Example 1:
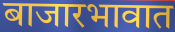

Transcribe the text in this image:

बाजारभावात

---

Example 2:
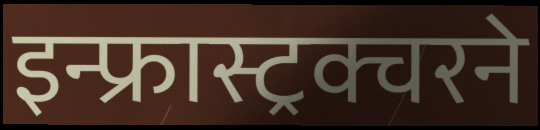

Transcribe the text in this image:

इन्फ्रास्ट्रक्चरने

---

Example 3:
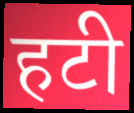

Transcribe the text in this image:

हटी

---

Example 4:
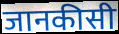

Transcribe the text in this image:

जानकीसी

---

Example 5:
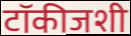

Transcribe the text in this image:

टॉकीजशी